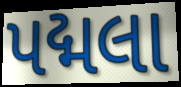
પદ્મલા